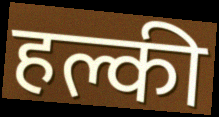
हल्‍की